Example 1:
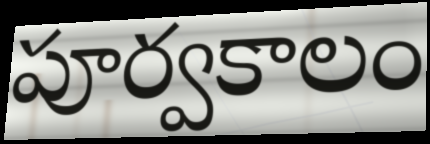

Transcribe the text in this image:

పూర్వకాలం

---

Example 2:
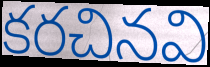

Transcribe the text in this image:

కరచినవి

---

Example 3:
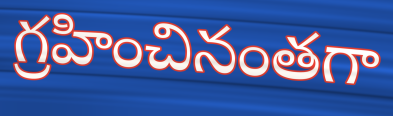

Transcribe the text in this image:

గ్రహించినంతగా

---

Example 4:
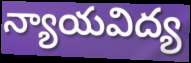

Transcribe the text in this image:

న్యాయవిద్య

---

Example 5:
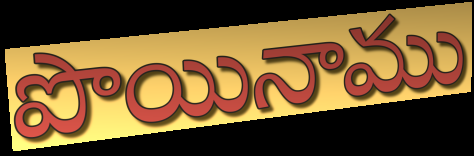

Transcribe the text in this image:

పొయినాము